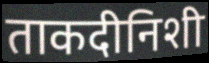
ताकदीनिशी